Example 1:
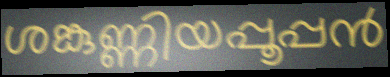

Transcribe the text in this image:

ശങ്കുണ്ണിയപ്പൂപ്പൻ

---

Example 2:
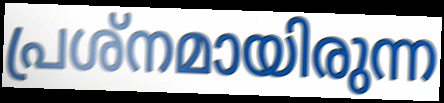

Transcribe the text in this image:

പ്രശ്നമായിരുന്ന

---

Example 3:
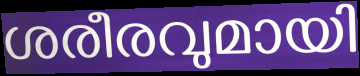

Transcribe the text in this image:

ശരീരവുമായി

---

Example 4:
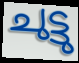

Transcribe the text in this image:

ചുട്ടു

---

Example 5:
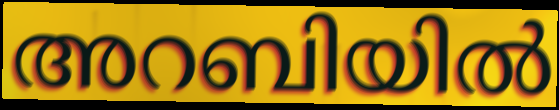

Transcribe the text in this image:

അറബിയിൽ